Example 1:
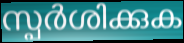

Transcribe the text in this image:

സ്പർശിക്കുക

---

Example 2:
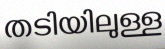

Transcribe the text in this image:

തടിയിലുള്ള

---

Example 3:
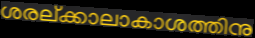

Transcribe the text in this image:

ശരല്ക്കാലാകാശത്തിനു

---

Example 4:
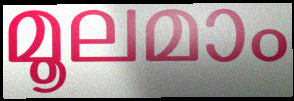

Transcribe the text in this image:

മൂലമാം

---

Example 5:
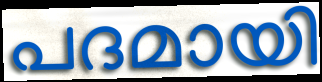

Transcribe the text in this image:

പദമായി